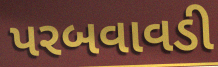
પરબવાવડી